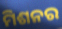
ମିଶନର